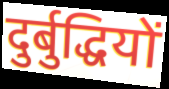
दुर्बुद्धियों